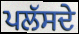
ਪਲੱਸਦੇ